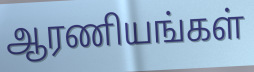
ஆரணியங்கள்